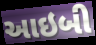
આઇબી